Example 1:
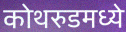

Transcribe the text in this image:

कोथरुडमध्ये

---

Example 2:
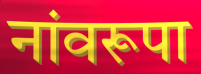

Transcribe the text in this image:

नांवरूपा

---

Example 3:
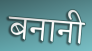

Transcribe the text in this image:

बनानी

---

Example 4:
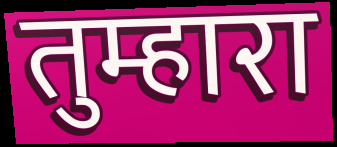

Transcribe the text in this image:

तुम्हारा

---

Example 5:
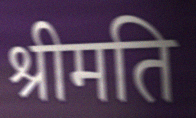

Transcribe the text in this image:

श्रीमति